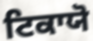
ਟਿਕਾਯੋ